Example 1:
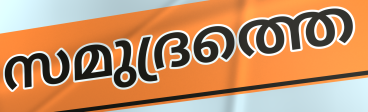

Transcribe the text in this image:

സമുദ്രത്തെ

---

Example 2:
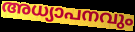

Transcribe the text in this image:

അധ്യാപനവും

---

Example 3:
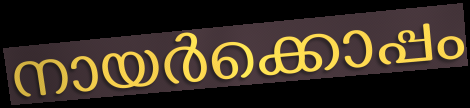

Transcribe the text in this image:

നായർക്കൊപ്പം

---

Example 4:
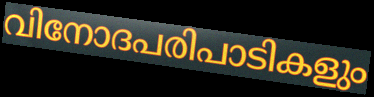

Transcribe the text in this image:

വിനോദപരിപാടികളും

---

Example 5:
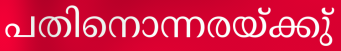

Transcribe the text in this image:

പതിനൊന്നരയ്ക്കു്